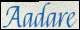
Aadare